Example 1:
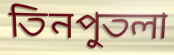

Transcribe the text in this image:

তিনপুতলা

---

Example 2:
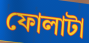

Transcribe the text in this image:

ফোলাটা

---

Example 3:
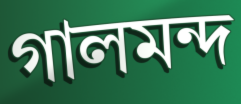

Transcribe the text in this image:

গালমন্দ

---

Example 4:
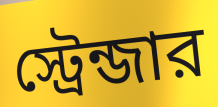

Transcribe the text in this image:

স্ট্রেন্জার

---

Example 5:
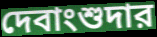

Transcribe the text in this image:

দেবাংশুদার